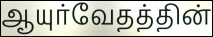
ஆயுர்வேதத்தின்